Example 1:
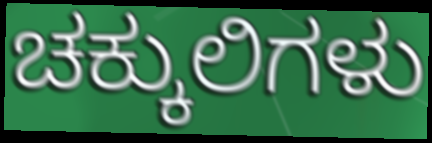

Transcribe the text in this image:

ಚಕ್ಕುಲಿಗಳು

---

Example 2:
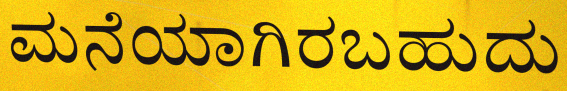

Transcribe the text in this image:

ಮನೆಯಾಗಿರಬಹುದು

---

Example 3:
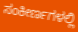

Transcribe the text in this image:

ಸಂಕೀರ್ಣಗಳಲ್ಲಿ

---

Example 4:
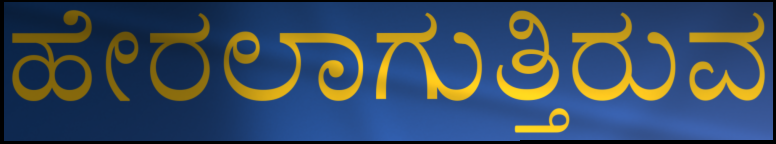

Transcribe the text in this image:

ಹೇರಲಾಗುತ್ತಿರುವ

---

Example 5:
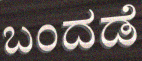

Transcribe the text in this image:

ಬಂದಡೆ